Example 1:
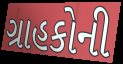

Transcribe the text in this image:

ગ્રાહકોની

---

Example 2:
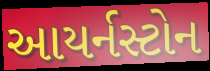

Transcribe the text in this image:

આયર્નસ્ટોન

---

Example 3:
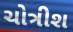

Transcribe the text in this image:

ચોત્રીશ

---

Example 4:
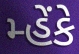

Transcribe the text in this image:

મ્હેંકે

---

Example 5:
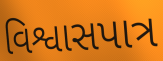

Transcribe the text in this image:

વિશ્વાસપાત્ર